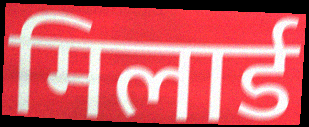
मिलार्ड